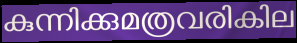
കുന്നിക്കുമത്രവരികില